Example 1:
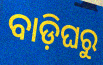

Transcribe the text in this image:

ବାଡ଼ିଘରୁ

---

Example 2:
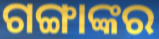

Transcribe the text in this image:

ଗଙ୍ଗାଙ୍କର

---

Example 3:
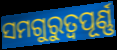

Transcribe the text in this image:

ସମଗୁରୁତ୍ଵପୂର୍ଣ୍ଣ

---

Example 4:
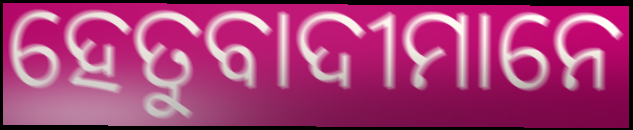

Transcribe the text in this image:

ହେତୁବାଦୀମାନେ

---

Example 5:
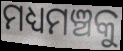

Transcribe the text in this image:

ମଧ୍ୟମଞ୍ଚକୁ